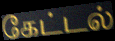
கேட்டல்